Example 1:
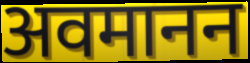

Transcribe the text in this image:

अवमानन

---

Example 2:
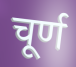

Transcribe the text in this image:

चूर्ण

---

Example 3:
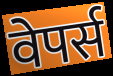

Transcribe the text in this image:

वेपर्स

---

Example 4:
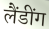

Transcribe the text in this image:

लैंडींग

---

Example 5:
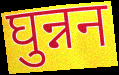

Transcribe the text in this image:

घुन्नन